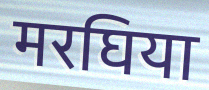
मरघिया